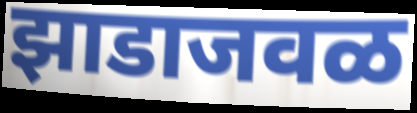
झाडाजवळ